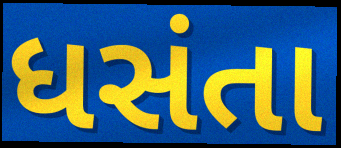
ધસંતા